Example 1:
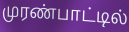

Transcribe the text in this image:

முரண்பாட்டில்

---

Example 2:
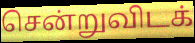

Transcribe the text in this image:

சென்றுவிடக்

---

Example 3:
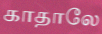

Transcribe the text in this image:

காதாலே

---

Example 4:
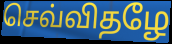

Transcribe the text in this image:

செவ்விதழே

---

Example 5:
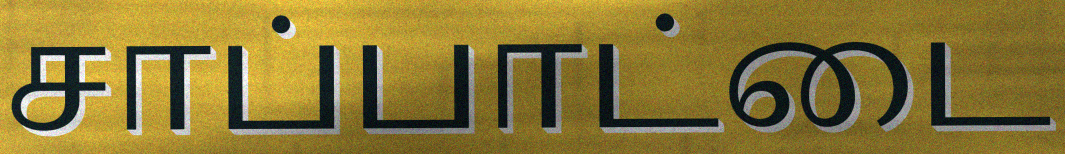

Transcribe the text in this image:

சாப்பாட்டை